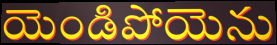
యెండిపోయెను